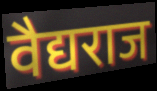
वैद्यराज